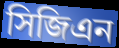
সিজিএন